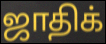
ஜாதிக்